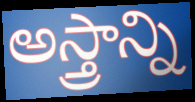
అస్త్రాన్ని